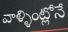
వాళ్ళింట్లోనే